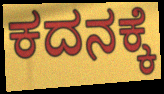
ಕದನಕ್ಕೆ